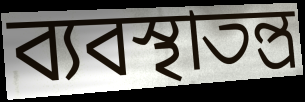
ব্যবস্থাতন্ত্র